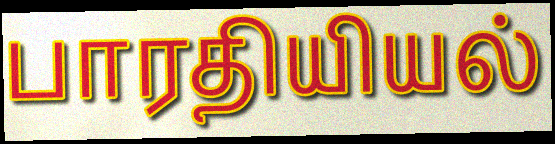
பாரதியியல்